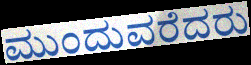
ಮುಂದುವರೆದರು